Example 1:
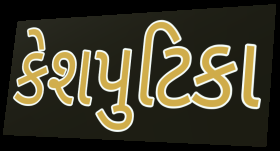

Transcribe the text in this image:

કેશપુટિકા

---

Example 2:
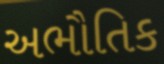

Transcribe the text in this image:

અભૌતિક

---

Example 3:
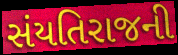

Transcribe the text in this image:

સંયતિરાજની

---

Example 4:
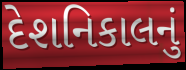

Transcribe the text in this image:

દેશનિકાલનું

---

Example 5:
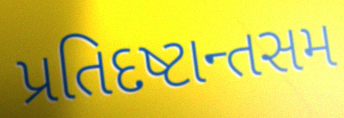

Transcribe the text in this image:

પ્રતિદષ્ટાન્તસમ